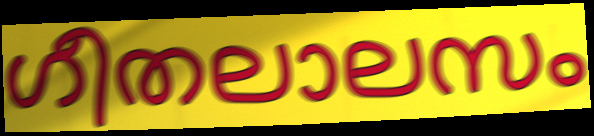
ഗീതലാലസം